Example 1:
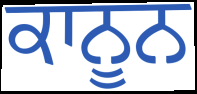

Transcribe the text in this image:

ਕਾਨੂਨ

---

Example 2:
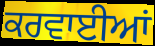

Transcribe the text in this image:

ਕਰਵਾਈਆਂ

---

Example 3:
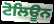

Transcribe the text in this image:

ਟੋਲਿਊਨ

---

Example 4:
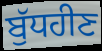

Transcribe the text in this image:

ਬੁੱਧਹੀਣ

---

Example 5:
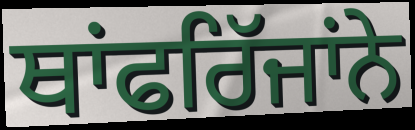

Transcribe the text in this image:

ਥਾਂਫਰਿੱਜਾਂਨੇ